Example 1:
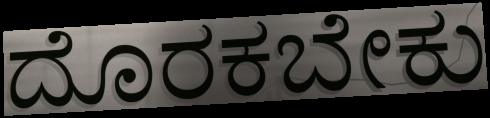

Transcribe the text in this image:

ದೊರಕಬೇಕು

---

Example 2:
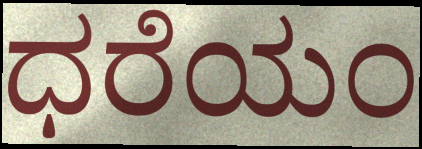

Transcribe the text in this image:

ಧರೆಯಂ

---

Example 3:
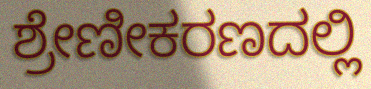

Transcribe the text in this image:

ಶ್ರೇಣೀಕರಣದಲ್ಲಿ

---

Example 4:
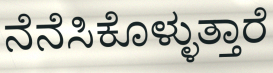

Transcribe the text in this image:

ನೆನೆಸಿಕೊಳ್ಳುತ್ತಾರೆ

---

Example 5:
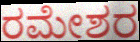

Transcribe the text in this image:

ರಮೇಶರ